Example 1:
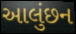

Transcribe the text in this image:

આલુંછન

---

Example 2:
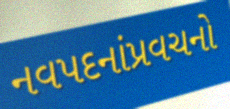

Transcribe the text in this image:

નવપદનાંપ્રવચનો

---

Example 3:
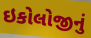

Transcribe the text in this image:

ઇકોલોજીનું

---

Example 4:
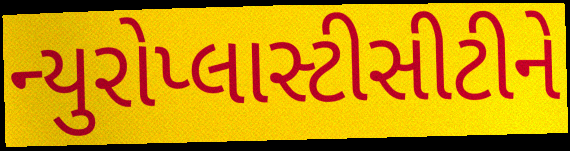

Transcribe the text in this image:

ન્યુરોપ્લાસ્ટીસીટીને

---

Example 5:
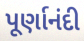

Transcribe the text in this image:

પૂર્ણાનંદી